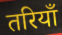
तरियाँ